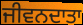
ਜੀਵਨਦਾਤਾ